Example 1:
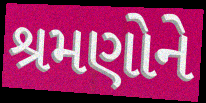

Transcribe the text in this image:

શ્રમણોને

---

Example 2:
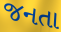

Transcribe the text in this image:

જનતા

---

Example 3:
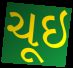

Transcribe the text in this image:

ચૂઇ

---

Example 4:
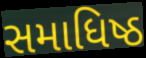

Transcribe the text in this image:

સમાધિષ્ઠ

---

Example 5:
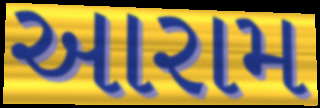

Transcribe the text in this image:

આરામ